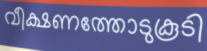
വീക്ഷണത്തോടുകൂടി